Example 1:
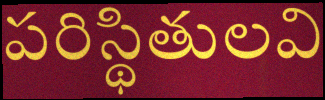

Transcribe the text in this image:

పరిస్థితులవి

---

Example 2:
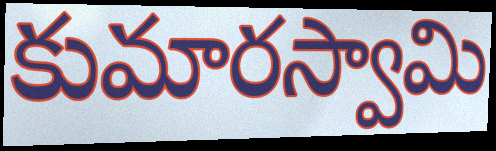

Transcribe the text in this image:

కుమారస్వామి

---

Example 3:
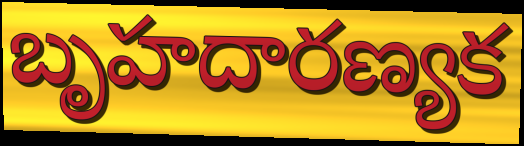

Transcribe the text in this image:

బృహదారణ్యక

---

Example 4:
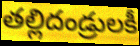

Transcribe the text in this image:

తల్లిదండ్రులకీ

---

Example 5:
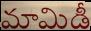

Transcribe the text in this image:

మామిడీ